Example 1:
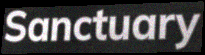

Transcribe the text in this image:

Sanctuary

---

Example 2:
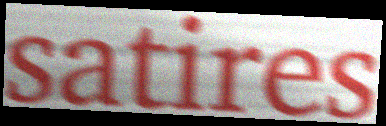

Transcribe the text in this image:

satires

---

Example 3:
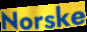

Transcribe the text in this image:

Norske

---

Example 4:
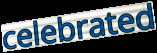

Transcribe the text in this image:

celebrated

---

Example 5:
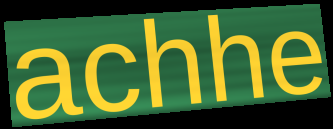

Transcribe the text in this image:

achhe